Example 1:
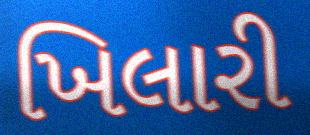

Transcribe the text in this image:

ખિલારી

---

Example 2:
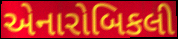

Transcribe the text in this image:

એનારોબિકલી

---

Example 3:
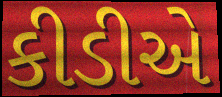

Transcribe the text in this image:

કીડીએ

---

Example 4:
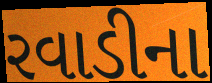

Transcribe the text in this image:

રવાડીના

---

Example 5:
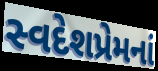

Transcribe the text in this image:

સ્વદેશપ્રેમનાં